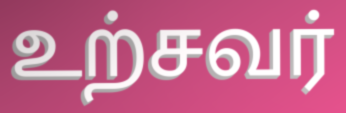
உற்சவர்